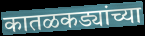
कातळकड्यांच्या